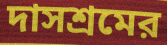
দাসশ্রমের